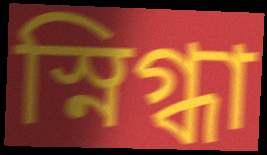
স্নিগ্ধা